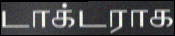
டாக்டராக